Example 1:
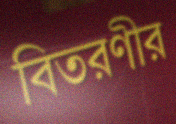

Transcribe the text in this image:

বিতরণীর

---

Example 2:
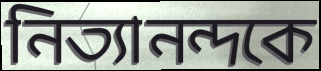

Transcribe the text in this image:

নিত্যানন্দকে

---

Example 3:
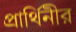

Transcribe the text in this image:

প্রার্থিনীর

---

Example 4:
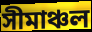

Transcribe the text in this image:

সীমাঞ্চল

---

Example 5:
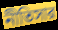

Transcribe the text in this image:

নীতিসার